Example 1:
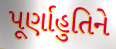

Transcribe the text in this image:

પૂર્ણાહુતિને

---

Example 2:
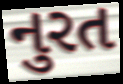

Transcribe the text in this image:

નુરત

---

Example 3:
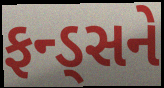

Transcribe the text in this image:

ફન્ડ્સને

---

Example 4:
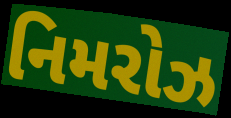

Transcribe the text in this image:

નિમરોઝ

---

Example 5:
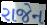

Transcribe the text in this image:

રાજેન